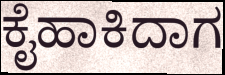
ಕೈಹಾಕಿದಾಗ